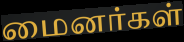
மைனர்கள்